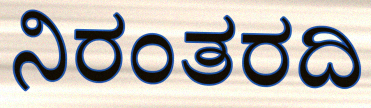
ನಿರಂತರದಿ